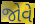
જોવે